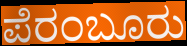
ಪೆರಂಬೂರು